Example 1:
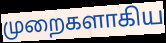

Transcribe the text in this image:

முறைகளாகிய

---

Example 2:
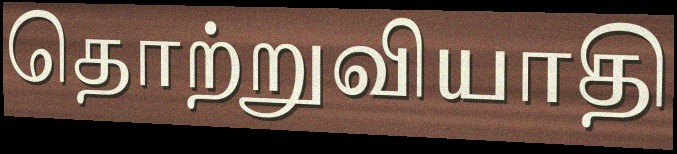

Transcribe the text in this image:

தொற்றுவியாதி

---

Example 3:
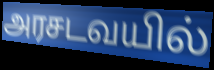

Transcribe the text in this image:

அரசடவயில்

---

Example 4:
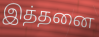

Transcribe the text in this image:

இத்தனை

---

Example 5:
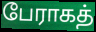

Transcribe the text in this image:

பேராகத்